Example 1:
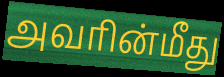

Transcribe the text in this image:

அவரின்மீது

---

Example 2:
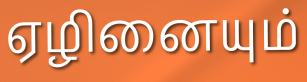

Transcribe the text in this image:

ஏழினையும்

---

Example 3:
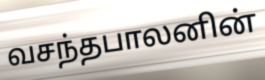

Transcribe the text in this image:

வசந்தபாலனின்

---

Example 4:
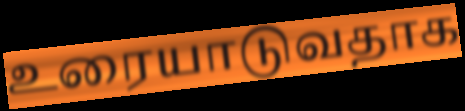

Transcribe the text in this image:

உரையாடுவதாக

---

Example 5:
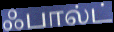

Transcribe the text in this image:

ஃபால்ட்